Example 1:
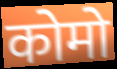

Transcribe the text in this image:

कोमो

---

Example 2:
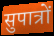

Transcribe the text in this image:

सुपात्रों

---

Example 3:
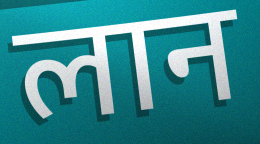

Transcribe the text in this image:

लान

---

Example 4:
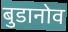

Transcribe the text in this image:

बुडानोव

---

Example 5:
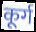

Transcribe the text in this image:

कूर्ग